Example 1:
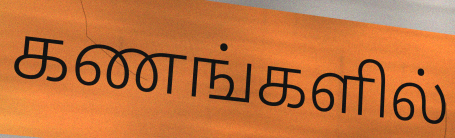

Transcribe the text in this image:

கணங்களில்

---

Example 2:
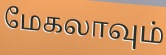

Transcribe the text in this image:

மேகலாவும்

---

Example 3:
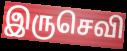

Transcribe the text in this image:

இருசெவி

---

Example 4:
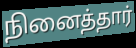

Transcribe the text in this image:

நினைத்தார்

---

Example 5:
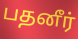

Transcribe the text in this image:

பதனீர்